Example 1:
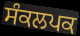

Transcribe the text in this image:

ਸੰਕਲਪਕ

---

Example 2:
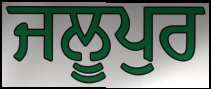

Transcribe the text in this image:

ਜਲੂਪੁਰ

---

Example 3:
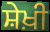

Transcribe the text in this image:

ਸ਼ੇਖ਼ੀ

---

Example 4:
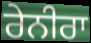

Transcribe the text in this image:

ਰੇਨੀਰਾ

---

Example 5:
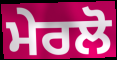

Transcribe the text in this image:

ਮੇਰਲੋ